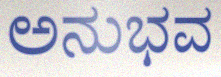
ಅನುಭವ